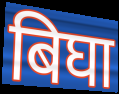
बिघा